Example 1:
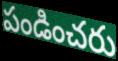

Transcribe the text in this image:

పండించరు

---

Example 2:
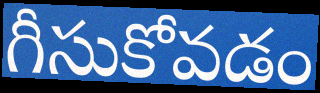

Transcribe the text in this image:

గీసుకోవడం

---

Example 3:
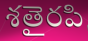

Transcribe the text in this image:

శతైరపి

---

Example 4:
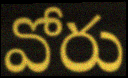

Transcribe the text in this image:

వోరు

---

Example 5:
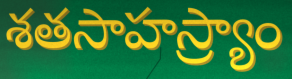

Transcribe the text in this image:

శతసాహస్ర్యాం